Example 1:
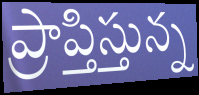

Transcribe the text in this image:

ప్రాప్తిస్తున్న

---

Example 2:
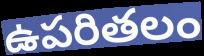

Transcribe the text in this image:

ఉపరితలం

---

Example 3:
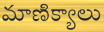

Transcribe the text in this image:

మాణిక్యాలు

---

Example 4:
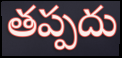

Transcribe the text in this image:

తప్పదు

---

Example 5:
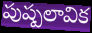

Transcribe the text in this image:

పుష్పలావిక